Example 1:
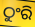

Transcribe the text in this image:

ଠୁଂରି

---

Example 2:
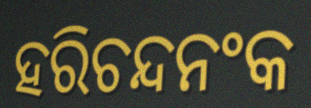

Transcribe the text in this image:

ହରିଚନ୍ଦନଂକ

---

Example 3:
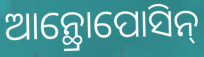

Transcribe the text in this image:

ଆନ୍ଥ୍ରୋପୋସିନ୍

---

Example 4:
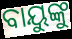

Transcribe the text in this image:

ବାୟୁଙ୍କୁ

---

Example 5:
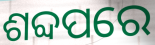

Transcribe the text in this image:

ଶବ୍ଦପରେ